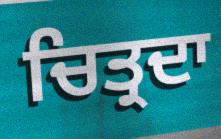
ਚਿਤ੍ਰਦਾ